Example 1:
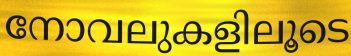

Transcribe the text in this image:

നോവലുകളിലൂടെ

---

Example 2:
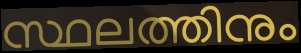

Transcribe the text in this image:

സ്ഥലത്തിനും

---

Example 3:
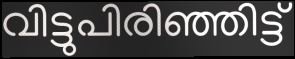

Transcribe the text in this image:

വിട്ടുപിരിഞ്ഞിട്ട്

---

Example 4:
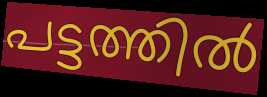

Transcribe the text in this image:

പട്ടത്തിൽ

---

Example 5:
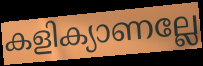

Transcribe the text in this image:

കളിക്യാണല്ലേ